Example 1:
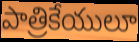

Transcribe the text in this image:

పాత్రికేయులూ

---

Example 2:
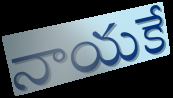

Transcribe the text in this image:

నాయకే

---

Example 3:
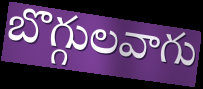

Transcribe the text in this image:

బొగ్గులవాగు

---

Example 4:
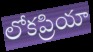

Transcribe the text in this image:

లోకప్రియా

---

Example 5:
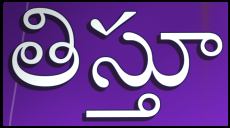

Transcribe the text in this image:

తిస్తూ